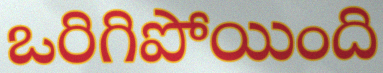
ఒరిగిపోయింది